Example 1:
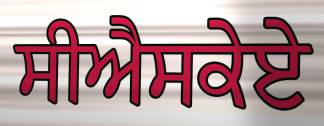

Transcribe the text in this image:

ਸੀਐਸਕੇਏ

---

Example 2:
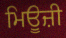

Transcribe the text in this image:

ਮਿਊਜ਼ੀ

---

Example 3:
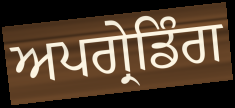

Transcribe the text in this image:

ਅਪਗ੍ਰੇਡਿੰਗ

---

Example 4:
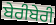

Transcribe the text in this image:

ਬੇਰੀਬੇਰੀ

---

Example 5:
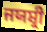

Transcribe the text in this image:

ਜਯਸ਼੍ਰੀ